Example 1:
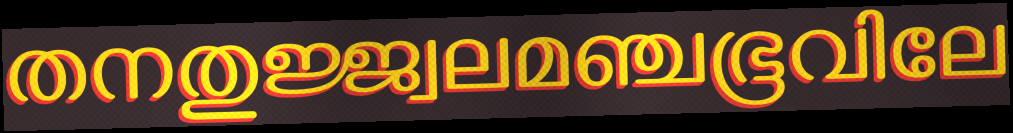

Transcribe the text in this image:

തനതുജ്ജ്വലമഞ്ചഭൂവിലേ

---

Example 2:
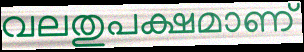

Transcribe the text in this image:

വലതുപക്ഷമാണ്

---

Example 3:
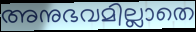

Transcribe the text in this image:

അനുഭവമില്ലാതെ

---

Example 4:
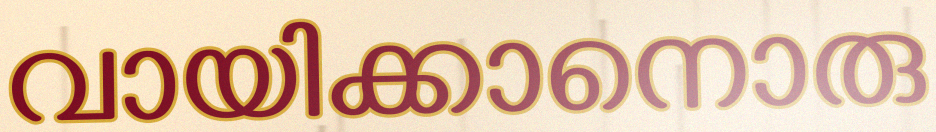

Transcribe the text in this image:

വായിക്കാനൊരു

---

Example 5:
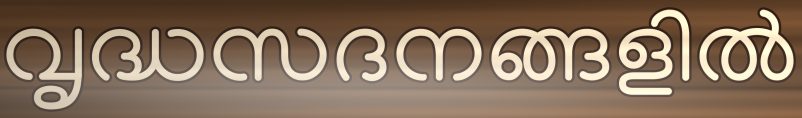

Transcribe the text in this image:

വൃദ്ധസദനങ്ങളിൽ